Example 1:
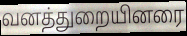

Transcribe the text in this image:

வனத்துறையினரை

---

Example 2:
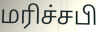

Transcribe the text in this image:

மரிச்சபி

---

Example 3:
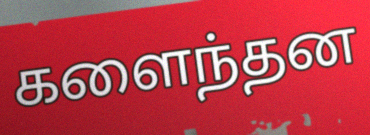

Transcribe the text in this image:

களைந்தன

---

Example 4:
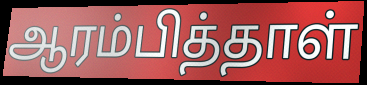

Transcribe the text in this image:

ஆரம்பித்தாள்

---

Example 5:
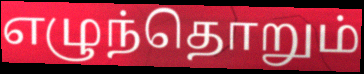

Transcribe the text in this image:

எழுந்தொறும்